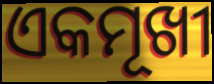
ଏକମୂଖୀ